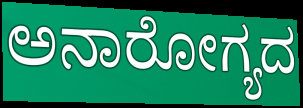
ಅನಾರೋಗ್ಯದ